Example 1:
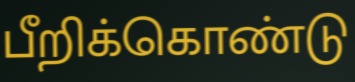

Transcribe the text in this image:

பீறிக்கொண்டு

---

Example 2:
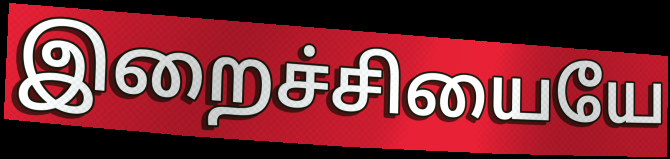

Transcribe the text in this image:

இறைச்சியையே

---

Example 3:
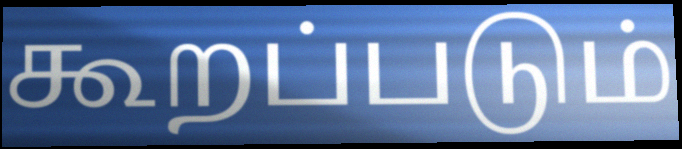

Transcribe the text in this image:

கூறப்படும்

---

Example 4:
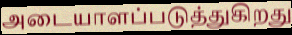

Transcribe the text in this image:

அடையாளப்படுத்துகிறது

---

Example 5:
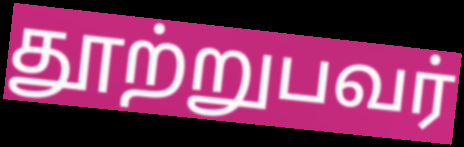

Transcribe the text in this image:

தூற்றுபவர்